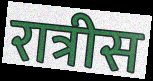
रात्रीस